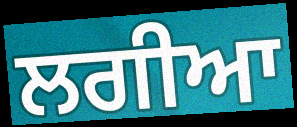
ਲਗੀਆ